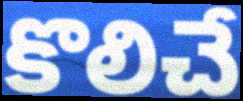
కొలిచే